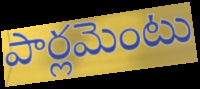
పార్లమెంటు